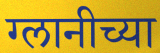
ग्लानीच्या